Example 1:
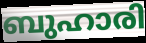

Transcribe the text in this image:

ബുഹാരി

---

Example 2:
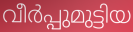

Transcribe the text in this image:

വീർപ്പുമുട്ടിയ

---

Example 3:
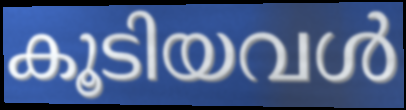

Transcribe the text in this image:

കൂടിയവൾ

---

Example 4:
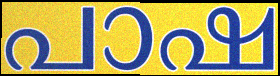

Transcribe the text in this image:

പാഷ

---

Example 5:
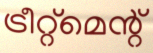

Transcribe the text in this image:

ട്രീറ്റ്മെന്റ്